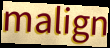
malign